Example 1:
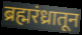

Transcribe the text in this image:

ब्रह्मरंध्रातून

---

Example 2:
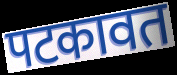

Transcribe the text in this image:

पटकावत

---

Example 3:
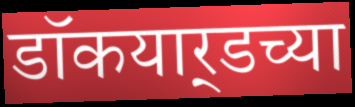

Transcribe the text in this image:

डॉकयार्डच्या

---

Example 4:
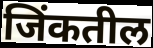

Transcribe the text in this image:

जिंकतील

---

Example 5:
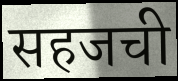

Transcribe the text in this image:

सहजची